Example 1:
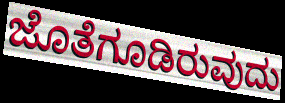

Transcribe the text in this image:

ಜೊತೆಗೂಡಿರುವುದು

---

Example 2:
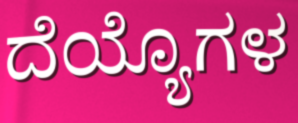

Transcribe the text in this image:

ದೆಯ್ಯೊಗಳ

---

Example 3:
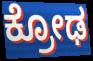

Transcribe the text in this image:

ಕ್ರೋಢ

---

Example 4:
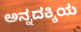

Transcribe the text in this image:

ಅನ್ನದಕ್ಕಿಯ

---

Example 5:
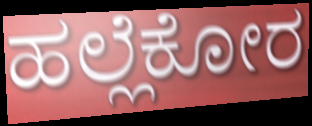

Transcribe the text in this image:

ಹಲ್ಲೆಕೋರ